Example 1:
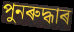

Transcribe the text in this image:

পুনৰুদ্ধাৰ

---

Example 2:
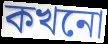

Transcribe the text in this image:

কখনো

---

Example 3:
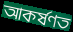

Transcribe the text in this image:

আকৰ্ষণত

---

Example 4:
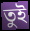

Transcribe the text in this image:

তুই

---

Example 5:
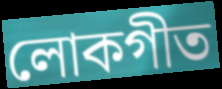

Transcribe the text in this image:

লোকগীত